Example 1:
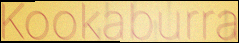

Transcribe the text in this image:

Kookaburra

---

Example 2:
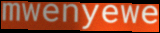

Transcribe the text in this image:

mwenyewe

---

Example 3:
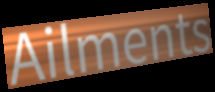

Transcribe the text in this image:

Ailments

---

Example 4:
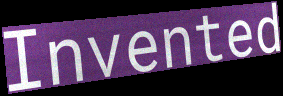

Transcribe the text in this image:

Invented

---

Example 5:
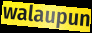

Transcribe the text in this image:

walaupun